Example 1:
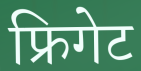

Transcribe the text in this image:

फ्रिगेट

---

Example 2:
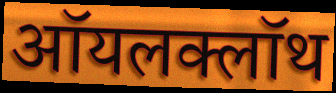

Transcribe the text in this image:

ऑयलक्लॉथ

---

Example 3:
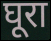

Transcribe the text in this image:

घूरा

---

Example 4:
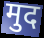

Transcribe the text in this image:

मुद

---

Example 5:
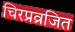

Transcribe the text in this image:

चिरप्रव्रजित